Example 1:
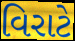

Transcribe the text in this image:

વિરાટે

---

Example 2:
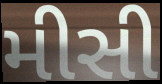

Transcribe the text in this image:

મીસી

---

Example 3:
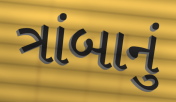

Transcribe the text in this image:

ત્રાંબાનું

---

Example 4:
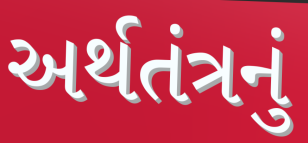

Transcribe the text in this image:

અર્થતંત્રનું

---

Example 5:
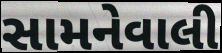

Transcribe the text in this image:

સામનેવાલી